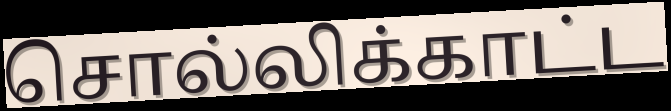
சொல்லிக்காட்ட